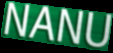
NANU